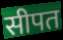
सीपत